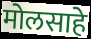
मोलसाहे